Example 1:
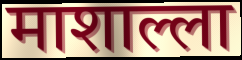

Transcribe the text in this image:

माशाल्ला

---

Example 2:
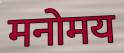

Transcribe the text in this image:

मनोमय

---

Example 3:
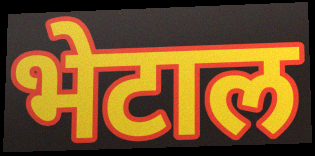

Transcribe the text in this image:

भेटाल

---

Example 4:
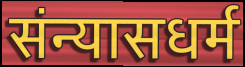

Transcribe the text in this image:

संन्यासधर्म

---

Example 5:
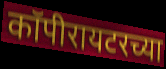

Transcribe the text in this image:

कॉपीरायटरच्या